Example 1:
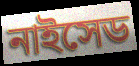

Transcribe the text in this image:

নাইসেড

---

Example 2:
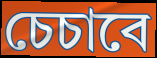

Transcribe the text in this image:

চেচাবে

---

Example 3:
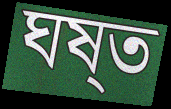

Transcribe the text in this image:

ঘষ্ত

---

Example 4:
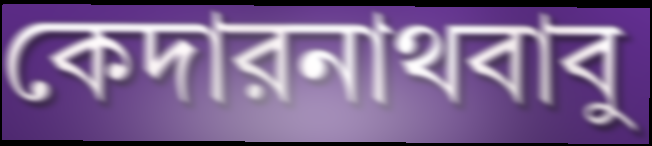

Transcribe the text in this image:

কেদারনাথবাবু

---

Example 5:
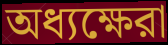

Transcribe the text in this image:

অধ্যক্ষেরা